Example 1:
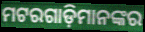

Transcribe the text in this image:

ମଟରଗାଡ଼ିମାନଙ୍କର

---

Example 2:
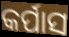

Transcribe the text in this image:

କର୍ପାସ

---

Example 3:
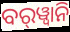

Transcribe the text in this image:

ବର୍‍ୱ୍ୱାନି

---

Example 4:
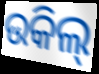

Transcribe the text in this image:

ଉକିଲ୍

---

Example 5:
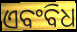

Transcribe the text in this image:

ଏବଂବିଧ